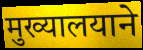
मुख्यालयाने